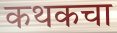
कथकचा